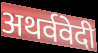
अथर्ववेदी